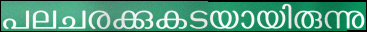
പലചരക്കുകടയായിരുന്നു